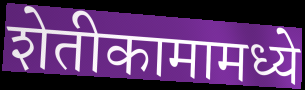
शेतीकामामध्ये